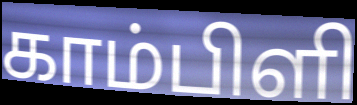
காம்பிளி